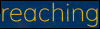
reaching